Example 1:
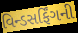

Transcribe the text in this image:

વિન્ડસર્ફિંગની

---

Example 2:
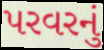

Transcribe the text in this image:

પરવરનું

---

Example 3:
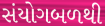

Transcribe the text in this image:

સંયોગબળથી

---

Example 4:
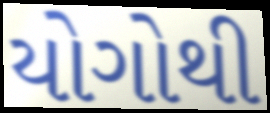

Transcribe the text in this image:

યોગોથી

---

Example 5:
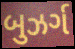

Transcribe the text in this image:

બુઝર્ગ